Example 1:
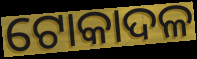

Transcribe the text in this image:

ଟୋକାଦଳ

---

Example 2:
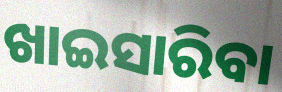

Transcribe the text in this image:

ଖାଇସାରିବା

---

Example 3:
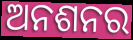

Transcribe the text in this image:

ଅନଶନର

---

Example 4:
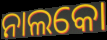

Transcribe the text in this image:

ନାଲକୋ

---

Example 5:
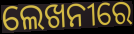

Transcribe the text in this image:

ଲେଖନୀରେ